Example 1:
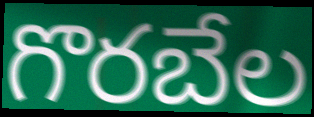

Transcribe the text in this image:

గొరబేల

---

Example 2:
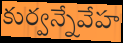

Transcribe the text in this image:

కుర్వన్నేవేహ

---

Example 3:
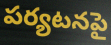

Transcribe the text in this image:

పర్యటనపై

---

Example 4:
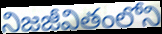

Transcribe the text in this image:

నిజజీవితంలోని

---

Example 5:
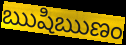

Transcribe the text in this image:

ఋషిఋణం